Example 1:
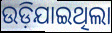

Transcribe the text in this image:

ଉଡ଼ିଯାଇଥିଲା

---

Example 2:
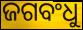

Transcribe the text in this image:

ଜଗବଂଧୁ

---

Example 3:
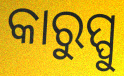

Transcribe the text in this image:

କାରୁପ୍ପୁ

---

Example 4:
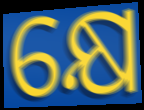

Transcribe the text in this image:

କ୍ଷେ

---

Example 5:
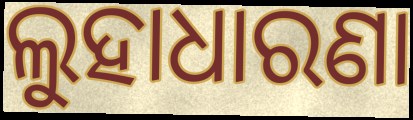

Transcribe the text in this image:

ଲୁହାଧାରଣା